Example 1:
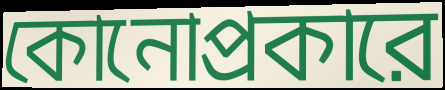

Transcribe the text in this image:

কোনোপ্রকারে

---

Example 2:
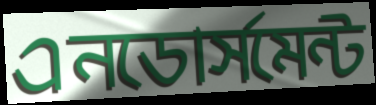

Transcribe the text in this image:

এনডোর্সমেন্ট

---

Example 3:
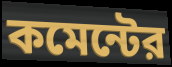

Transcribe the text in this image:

কমেন্টের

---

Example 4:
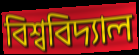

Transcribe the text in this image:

বিশ্ববিদ্যাল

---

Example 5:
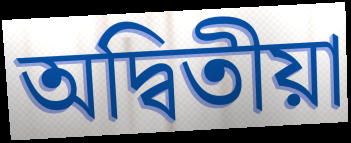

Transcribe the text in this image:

অদ্বিতীয়া